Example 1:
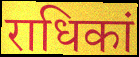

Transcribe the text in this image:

राधिकां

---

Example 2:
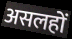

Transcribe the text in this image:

असलहों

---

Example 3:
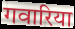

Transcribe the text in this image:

गवारिया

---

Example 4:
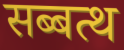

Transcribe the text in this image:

सब्बत्थ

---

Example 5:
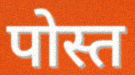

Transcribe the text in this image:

पोस्त